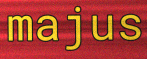
majus